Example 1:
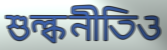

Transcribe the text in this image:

শুল্কনীতিও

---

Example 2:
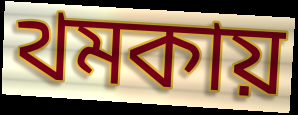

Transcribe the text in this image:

থমকায়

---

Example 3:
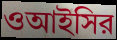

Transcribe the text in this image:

ওআইসির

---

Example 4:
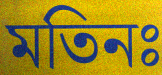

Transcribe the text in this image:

মতিনঃ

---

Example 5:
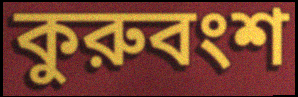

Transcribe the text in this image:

কুরুবংশ